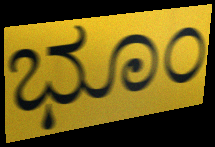
ಭೂಂ